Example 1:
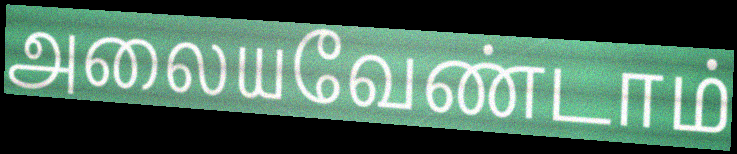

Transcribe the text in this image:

அலையவேண்டாம்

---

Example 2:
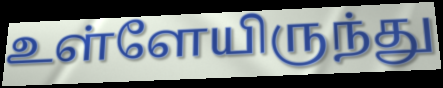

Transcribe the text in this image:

உள்ளேயிருந்து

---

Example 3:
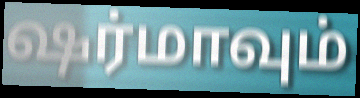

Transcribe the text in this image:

ஷர்மாவும்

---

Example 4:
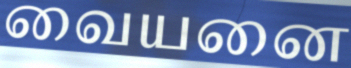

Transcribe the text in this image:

வையனை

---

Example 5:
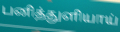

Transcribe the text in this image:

பனித்துளியாய்